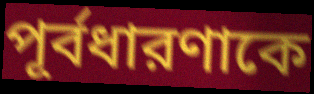
পূর্বধারণাকে